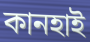
কানহাই